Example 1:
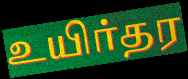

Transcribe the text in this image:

உயிர்தர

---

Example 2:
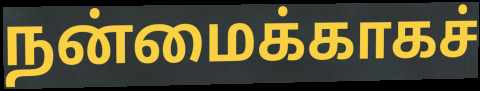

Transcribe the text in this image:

நன்மைக்காகச்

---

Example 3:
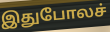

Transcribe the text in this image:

இதுபோலச்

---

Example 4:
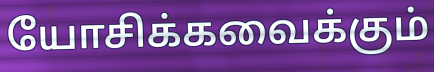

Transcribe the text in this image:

யோசிக்கவைக்கும்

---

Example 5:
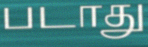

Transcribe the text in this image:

படாது